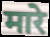
मारे